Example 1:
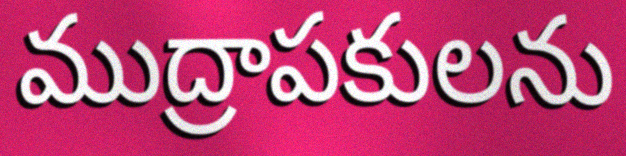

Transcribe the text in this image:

ముద్రాపకులను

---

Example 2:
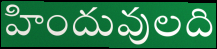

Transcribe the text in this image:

హిందువులది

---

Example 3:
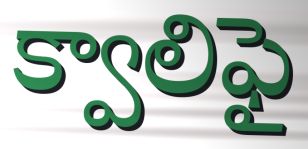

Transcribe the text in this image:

క్వాలిఫై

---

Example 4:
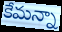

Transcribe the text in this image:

కేమన్నా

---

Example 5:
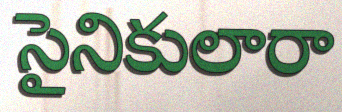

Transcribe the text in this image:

సైనికులారా